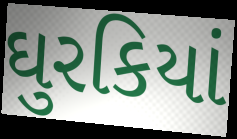
ઘુરકિયાં